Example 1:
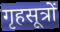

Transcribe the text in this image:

गृहसूत्रों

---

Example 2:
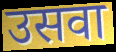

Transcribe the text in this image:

उसवा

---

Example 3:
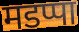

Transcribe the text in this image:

मडप्पा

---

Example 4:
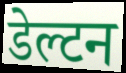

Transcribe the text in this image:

डेल्टन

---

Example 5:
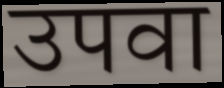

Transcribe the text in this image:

उपवा